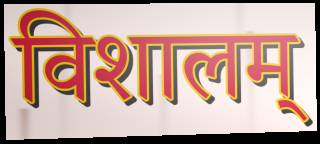
विशालम्